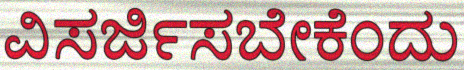
ವಿಸರ್ಜಿಸಬೇಕೆಂದು